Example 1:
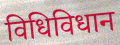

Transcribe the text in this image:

विधिविधान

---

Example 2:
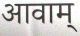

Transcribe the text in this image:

आवाम्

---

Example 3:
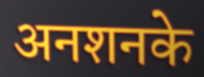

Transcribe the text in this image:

अनशनके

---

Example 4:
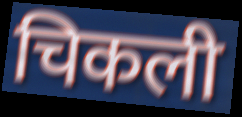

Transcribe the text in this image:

चिकली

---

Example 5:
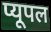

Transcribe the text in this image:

प्यूपल